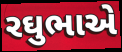
રઘુભાએ